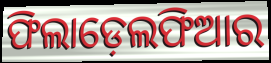
ଫିଲାଡ଼େଲଫିଆର